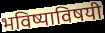
भविष्याविषयी